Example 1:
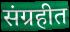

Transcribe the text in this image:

संग्रहीत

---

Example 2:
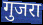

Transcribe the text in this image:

गुजरा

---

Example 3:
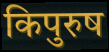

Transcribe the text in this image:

किपुरुष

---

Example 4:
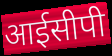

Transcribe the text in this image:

आईसीपी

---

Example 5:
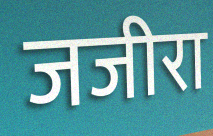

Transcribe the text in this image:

जजीरा